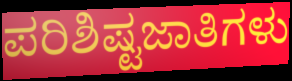
ಪರಿಶಿಷ್ಟಜಾತಿಗಳು